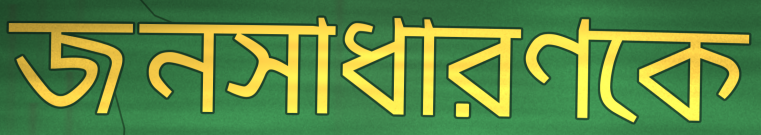
জনসাধারণকে